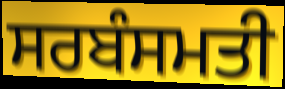
ਸਰਬੰਸਮਤੀ